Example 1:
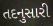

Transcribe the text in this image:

તદનુસારી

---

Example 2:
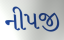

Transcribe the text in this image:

નીપજી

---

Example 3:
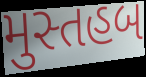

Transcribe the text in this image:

મુસ્તહબ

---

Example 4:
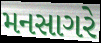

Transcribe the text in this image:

મનસાગરે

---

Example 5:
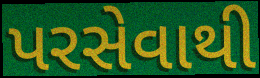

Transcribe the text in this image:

પરસેવાથી